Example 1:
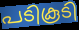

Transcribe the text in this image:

പടികൂടി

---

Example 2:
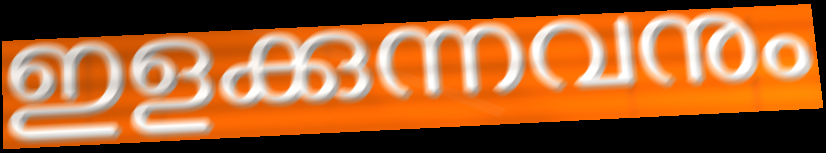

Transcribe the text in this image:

ഇളക്കുന്നവനും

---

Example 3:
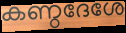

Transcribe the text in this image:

കണ്ഠദേശേ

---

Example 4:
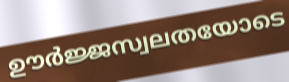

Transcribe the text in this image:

ഊർജ്ജസ്വലതയോടെ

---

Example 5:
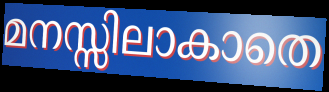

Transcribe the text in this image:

മനസ്സിലാകാതെ